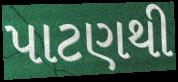
પાટણથી